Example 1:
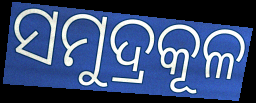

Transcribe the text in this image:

ସମୁଦ୍ରକୂଳ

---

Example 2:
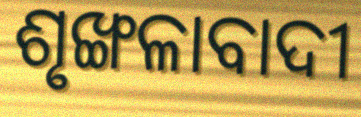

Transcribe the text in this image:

ଶୃଙ୍ଖଳାବାଦୀ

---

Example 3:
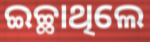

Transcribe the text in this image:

ଇଚ୍ଛାଥିଲେ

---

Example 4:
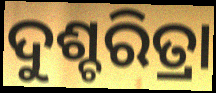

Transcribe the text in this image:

ଦୁଶ୍ଚରିତ୍ରା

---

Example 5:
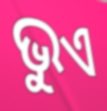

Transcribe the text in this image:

ଭୁଏ